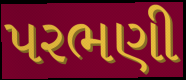
પરભણી